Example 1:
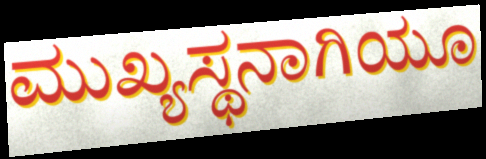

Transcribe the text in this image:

ಮುಖ್ಯಸ್ಥನಾಗಿಯೂ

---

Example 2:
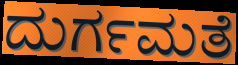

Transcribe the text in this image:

ದುರ್ಗಮತೆ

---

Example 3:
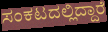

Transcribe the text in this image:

ಸಂಕಟದಲ್ಲಿದ್ದಾರೆ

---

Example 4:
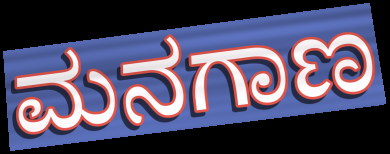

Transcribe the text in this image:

ಮನಗಾಣ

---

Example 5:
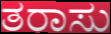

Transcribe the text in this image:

ತರಾಸು